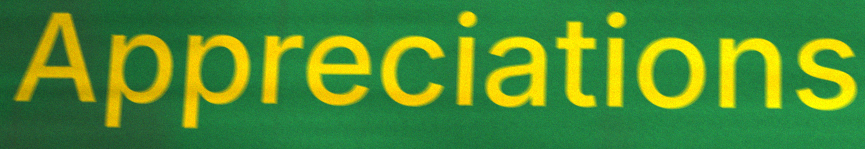
Appreciations